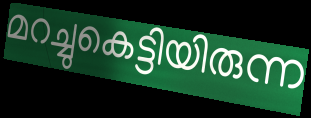
മറച്ചുകെട്ടിയിരുന്ന